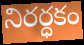
నిరర్ధకం